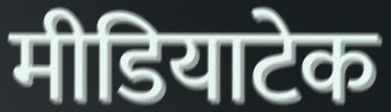
मीडियाटेक